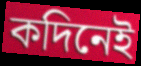
কদিনেই